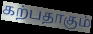
கற்பதாகும்